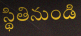
స్థితినుండి